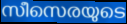
സീസെരയുടെ